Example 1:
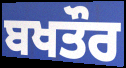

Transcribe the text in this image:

ਬਖਤੌਰ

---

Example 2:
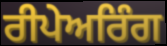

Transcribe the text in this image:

ਰੀਪੇਅਰਿੰਗ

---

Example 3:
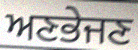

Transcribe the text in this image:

ਅਣਭੇਜਣ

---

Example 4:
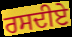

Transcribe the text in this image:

ਰਸਦੀਏ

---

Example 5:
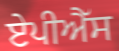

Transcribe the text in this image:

ਏਪੀਐੱਸ